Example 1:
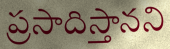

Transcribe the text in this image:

ప్రసాదిస్తానని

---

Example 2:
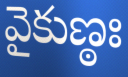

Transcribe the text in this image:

వైకుణ్ఠః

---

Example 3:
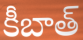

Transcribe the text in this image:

కీబాత్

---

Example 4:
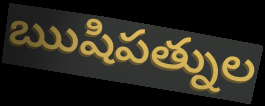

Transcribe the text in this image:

ఋషిపత్నుల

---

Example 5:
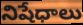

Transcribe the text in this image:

నిషేధాలు